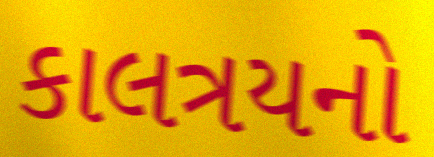
કાલત્રયનો